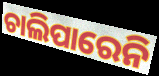
ଚାଲିପାରେନି